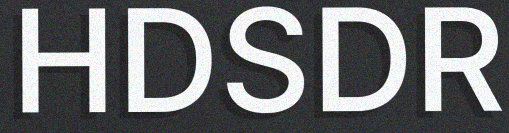
HDSDR